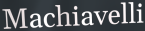
Machiavelli